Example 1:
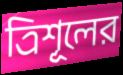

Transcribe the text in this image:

ত্রিশূলের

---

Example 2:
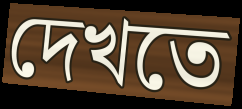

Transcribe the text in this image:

দেখতে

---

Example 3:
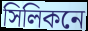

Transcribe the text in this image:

সিলিকনে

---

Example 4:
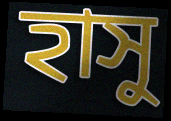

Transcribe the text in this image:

হাসু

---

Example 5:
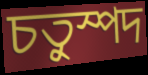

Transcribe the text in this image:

চতুস্পদ